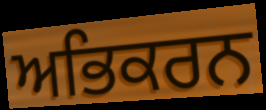
ਅਭਿਕਰਨ